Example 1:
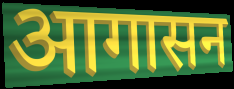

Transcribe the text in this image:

आगासन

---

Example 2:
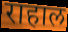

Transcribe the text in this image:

राहाल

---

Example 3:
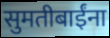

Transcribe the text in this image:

सुमतीबाईंना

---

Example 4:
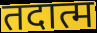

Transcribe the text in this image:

तदात्म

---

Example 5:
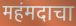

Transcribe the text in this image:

महंमदाचा